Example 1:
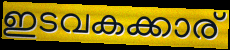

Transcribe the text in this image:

ഇടവകക്കാര്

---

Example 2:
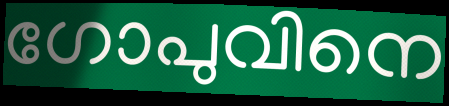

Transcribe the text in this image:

ഗോപുവിനെ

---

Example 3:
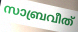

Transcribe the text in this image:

സാബ്രവീത്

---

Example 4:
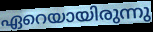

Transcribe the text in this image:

ഏറെയായിരുന്നു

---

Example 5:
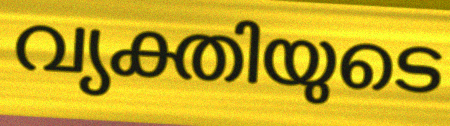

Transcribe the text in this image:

വ്യക്തിയുടെ